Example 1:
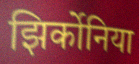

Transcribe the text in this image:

झिर्कोनिया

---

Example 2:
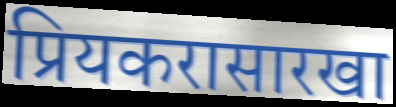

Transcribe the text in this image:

प्रियकरासारखा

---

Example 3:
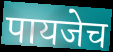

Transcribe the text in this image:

पायजेच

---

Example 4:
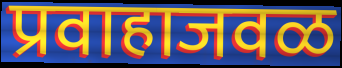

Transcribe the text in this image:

प्रवाहाजवळ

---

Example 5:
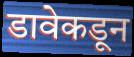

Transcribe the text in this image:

डावेकडून